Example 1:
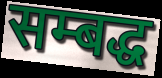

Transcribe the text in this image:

सम्बद्ध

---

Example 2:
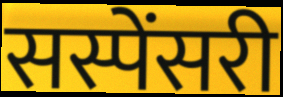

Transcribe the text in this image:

सस्पेंसरी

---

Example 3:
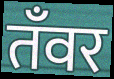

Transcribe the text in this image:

तँवर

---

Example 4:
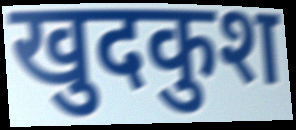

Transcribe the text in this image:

खुदकुश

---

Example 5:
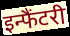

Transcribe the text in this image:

इन्फैंटरी